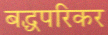
बद्धपरिकर